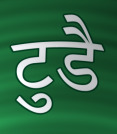
टुडै